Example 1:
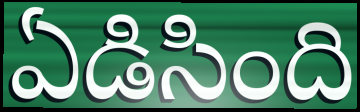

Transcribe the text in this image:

ఏడిసింది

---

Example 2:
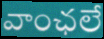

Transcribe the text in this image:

వాంఛలే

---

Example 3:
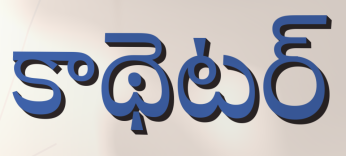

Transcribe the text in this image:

కాథెటర్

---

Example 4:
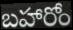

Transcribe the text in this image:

బహారోం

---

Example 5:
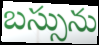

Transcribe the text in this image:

బస్సును